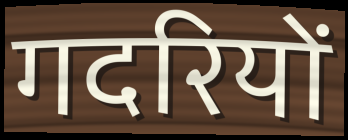
गदरियों